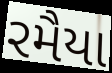
રમૈયા